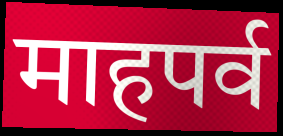
माहपर्व